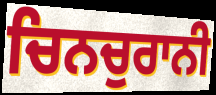
ਚਿਨਚੁਰਾਨੀ